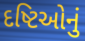
દષ્ટિઓનું